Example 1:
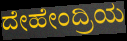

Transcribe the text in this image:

ದೇಹೇಂದ್ರಿಯ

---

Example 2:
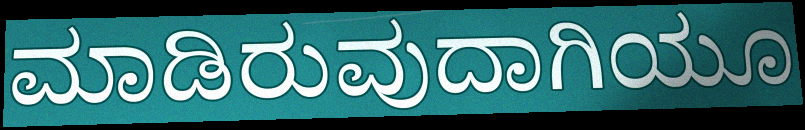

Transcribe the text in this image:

ಮಾಡಿರುವುದಾಗಿಯೂ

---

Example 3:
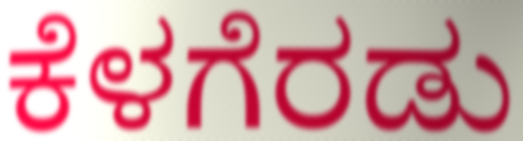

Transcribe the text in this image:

ಕೆಳಗೆರಡು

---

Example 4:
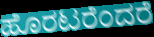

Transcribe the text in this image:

ಹೊರಟರೆಂದರೆ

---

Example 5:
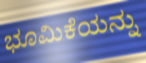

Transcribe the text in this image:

ಭೂಮಿಕೆಯನ್ನು